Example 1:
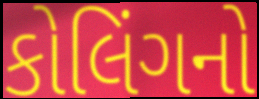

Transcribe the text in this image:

કોલિંગનો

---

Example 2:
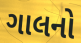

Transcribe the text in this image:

ગાલનો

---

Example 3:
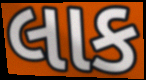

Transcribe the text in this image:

લાક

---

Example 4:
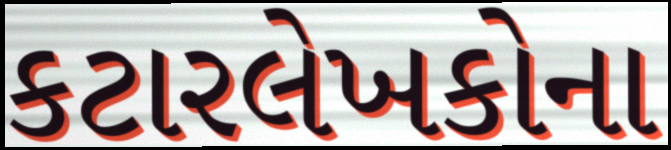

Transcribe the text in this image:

કટારલેખકોના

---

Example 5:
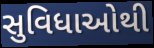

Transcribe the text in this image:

સુવિધાઓથી